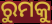
ରୁମକୁ